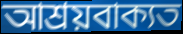
আশ্ৰয়বাক্যত